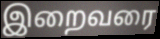
இறைவரை